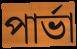
পার্ভা